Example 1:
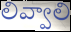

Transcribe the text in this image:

లివ్వాలి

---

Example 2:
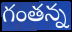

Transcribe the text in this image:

గంతన్న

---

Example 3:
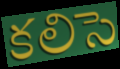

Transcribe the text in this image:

కలిసె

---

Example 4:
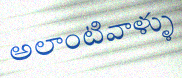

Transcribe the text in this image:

అలాంటివాళ్ళు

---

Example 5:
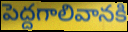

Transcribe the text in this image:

పెద్దగాలివానకి